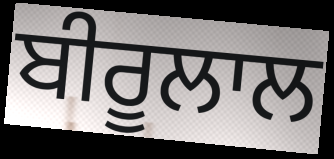
ਬੀਰੂਲਾਲ